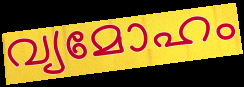
വ്യമോഹം